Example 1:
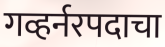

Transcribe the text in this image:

गव्हर्नरपदाचा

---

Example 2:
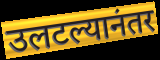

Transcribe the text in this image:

उलटल्यानंतर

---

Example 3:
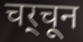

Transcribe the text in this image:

चर्चून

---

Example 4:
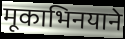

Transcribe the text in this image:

मूकाभिनयाने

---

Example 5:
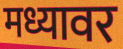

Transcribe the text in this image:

मध्यावर